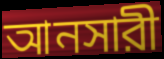
আনসারী